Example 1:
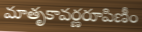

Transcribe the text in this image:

మాతృకావర్ణరూపిణీం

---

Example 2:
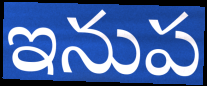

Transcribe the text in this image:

ఇనుప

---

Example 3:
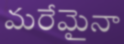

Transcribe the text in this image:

మరేమైనా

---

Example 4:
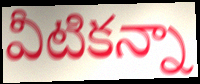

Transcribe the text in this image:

వీటికన్నా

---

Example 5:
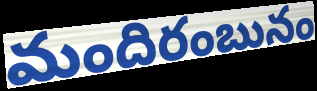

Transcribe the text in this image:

మందిరంబునం